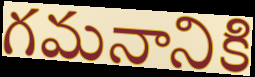
గమనానికి